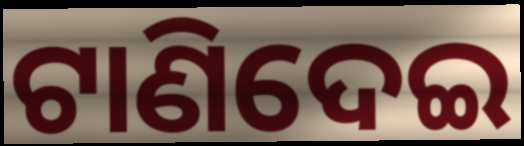
ଟାଣିଦେଇ